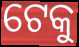
ଟେକୁ